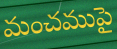
మంచముపై